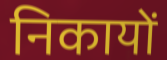
निकायों